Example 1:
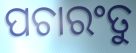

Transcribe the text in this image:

ପଚାରଂତୁ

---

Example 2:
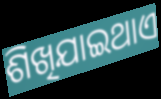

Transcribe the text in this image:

ଶିଖିଯାଇଥାଏ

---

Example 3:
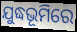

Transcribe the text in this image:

ଯୁଦ୍ଧଭୂମିରେ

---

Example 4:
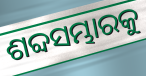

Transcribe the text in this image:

ଶବ୍ଦସମ୍ଭାରକୁ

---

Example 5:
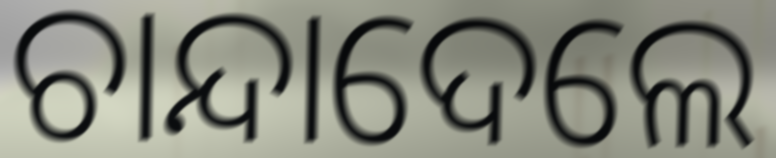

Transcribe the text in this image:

ଚାନ୍ଦାଦେଲେ